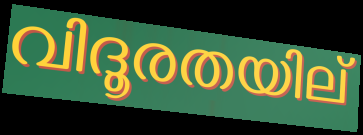
വിദൂരതയില്